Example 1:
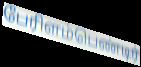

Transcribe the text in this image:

பேரிளம்பெண்டிர்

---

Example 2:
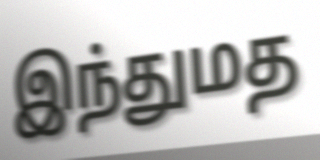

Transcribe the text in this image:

இந்துமத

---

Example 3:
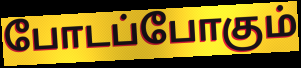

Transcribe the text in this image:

போடப்போகும்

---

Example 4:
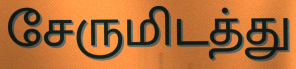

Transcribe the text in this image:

சேருமிடத்து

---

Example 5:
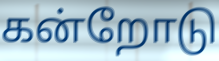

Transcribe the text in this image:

கன்றோடு